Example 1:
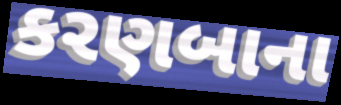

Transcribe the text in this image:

કરણબાના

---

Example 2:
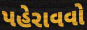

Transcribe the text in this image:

પહેરાવવો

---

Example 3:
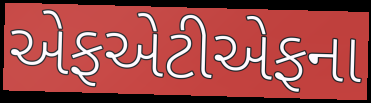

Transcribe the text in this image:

એફએટીએફના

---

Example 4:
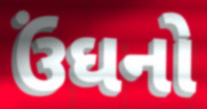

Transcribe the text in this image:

ઉંઘનો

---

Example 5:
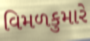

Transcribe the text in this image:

વિમળકુમારે